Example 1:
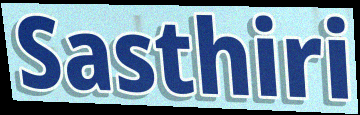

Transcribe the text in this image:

Sasthiri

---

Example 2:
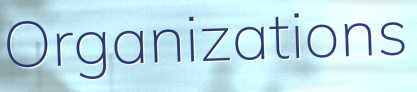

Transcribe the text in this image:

Organizations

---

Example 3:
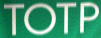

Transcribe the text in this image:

TOTP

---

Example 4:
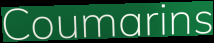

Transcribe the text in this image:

Coumarins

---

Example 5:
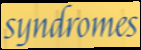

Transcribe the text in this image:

syndromes